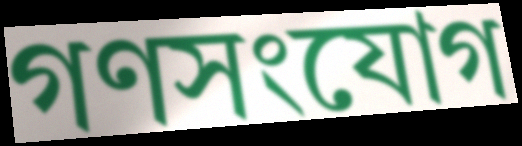
গণসংযোগ